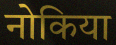
नोकिया